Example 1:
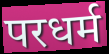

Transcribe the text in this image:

परधर्म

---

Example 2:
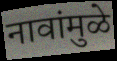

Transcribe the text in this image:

नावांमुळे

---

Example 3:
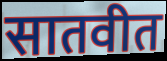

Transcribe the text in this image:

सातवीत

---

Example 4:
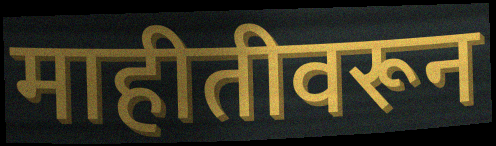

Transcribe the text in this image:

माहीतीवरून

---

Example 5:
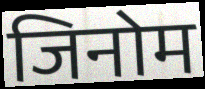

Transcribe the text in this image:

जिनोम